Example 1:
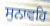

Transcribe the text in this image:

ਸੁਨਾਵਹਿ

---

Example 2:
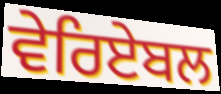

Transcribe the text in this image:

ਵੇਰਿਏਬਲ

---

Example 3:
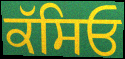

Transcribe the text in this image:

ਕੱਸਿਓ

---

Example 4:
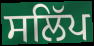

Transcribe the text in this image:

ਸਲਿੱਪ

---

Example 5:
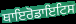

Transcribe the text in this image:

ਥਾਇਰੋਡਾਇਟਿਸ